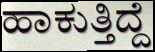
ಹಾಕುತ್ತಿದ್ದೆ